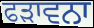
ਫੜਾਵਨਾ